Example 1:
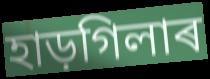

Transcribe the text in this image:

হাড়গিলাৰ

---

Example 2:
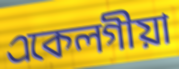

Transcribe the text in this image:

একেলগীয়া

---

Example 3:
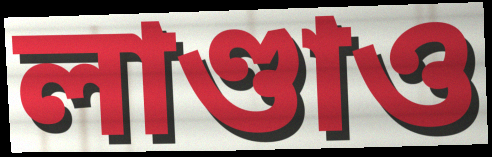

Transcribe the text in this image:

লাণ্ডাও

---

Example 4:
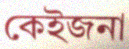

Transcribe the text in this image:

কেইজনা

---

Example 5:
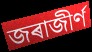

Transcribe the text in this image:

জৰাজীৰ্ণ